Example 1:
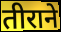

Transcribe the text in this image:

तीराने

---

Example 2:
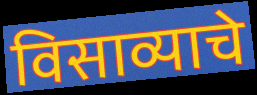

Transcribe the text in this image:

विसाव्याचे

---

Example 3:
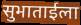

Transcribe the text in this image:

सुभाताईला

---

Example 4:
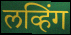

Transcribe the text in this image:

लव्हिंग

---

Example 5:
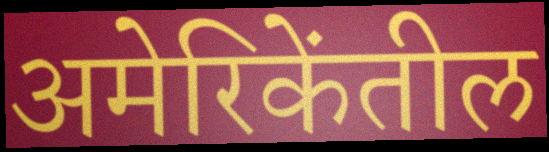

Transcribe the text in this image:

अमेरिकेंतील